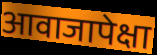
आवाजापेक्षा